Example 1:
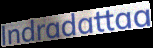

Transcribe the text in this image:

Indradattaa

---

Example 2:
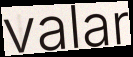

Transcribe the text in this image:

valar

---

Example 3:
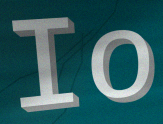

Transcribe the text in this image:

Io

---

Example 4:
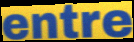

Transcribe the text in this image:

entre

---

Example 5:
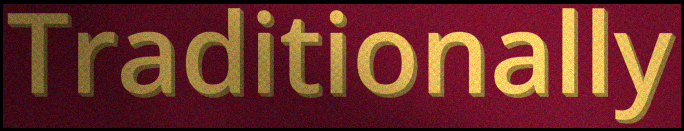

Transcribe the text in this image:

Traditionally